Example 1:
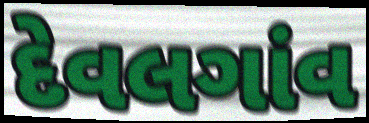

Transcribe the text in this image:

દેવલગાંવ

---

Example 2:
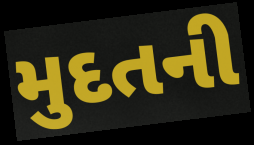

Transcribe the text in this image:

મુદતની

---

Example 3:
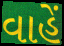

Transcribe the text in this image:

વાહેં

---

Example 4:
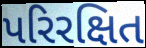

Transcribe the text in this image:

પરિરક્ષિત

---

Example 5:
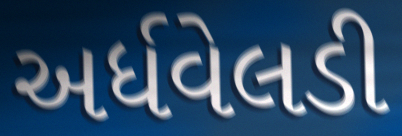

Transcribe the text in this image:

અર્ધવેલડી